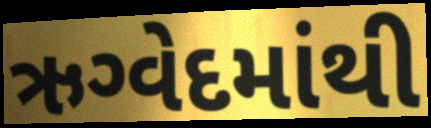
ઋગ્વેદમાંથી